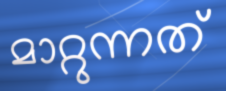
മാറ്റുന്നത്